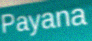
Payana